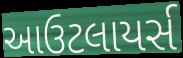
આઉટલાયર્સ